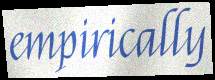
empirically